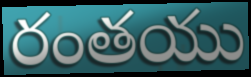
రంతయు